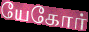
யேகோர்